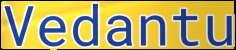
Vedantu